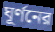
ঘূর্ণনের